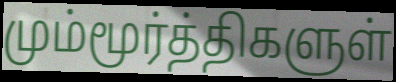
மும்மூர்த்திகளுள்